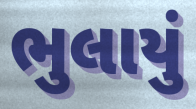
ભુલાયું